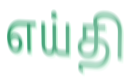
எய்தி